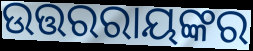
ଉତ୍ତରରାୟଙ୍କର